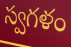
స్వగళం